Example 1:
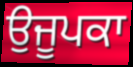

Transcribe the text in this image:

ਉਜੂਪਕਾ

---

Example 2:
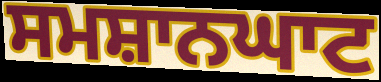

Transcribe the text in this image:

ਸਮਸ਼ਾਨਘਾਟ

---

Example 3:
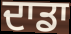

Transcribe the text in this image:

ਦਾਡਾ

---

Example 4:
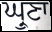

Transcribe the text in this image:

ਘ੍ਰੁਣਾ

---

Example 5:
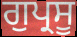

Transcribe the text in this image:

ਗੁਪ੍ਰਸੂ